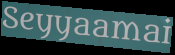
Seyyaamai